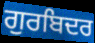
ਗੁਰਬਿਦਰ